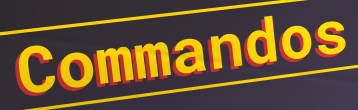
Commandos